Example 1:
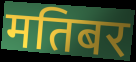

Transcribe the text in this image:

मतिबर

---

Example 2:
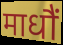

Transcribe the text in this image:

माधौं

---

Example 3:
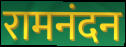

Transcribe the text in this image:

रामनंदन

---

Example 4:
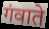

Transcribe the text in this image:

गंवाते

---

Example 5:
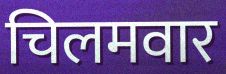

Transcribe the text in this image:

चिलमवार